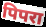
पिपरा